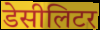
डेसीलिटर